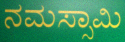
ನಮಸ್ಸಾಮಿ